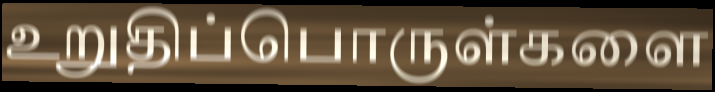
உறுதிப்பொருள்களை